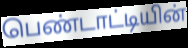
பெண்டாட்டியின்